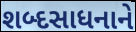
શબ્દસાધનાને